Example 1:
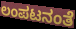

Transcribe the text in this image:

ಲಂಪಟನಂತೆ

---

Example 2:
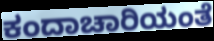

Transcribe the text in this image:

ಕಂದಾಚಾರಿಯಂತೆ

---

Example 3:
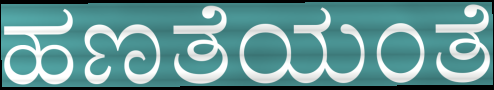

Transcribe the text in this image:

ಹಣತೆಯಂತೆ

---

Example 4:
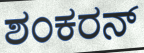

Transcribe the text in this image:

ಶಂಕರನ್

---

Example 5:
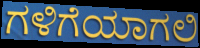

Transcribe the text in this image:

ಗಳಿಗೆಯಾಗಲಿ